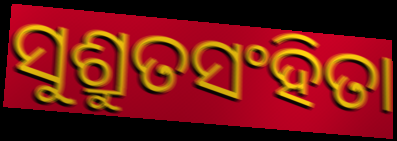
ସୁଶ୍ରୁତସଂହିତା